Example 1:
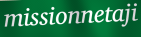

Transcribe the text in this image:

missionnetaji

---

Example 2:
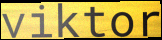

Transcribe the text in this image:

viktor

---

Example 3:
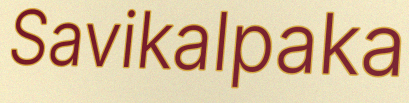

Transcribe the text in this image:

Savikalpaka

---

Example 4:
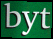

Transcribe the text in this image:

byt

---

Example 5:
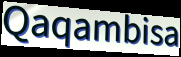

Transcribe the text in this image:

Qaqambisa